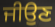
ਜੀਉਣ